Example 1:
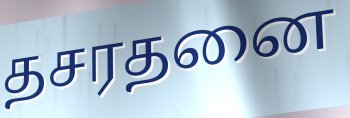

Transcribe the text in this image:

தசரதனை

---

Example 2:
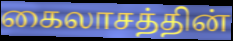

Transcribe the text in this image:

கைலாசத்தின்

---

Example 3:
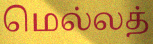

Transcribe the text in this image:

மெல்லத்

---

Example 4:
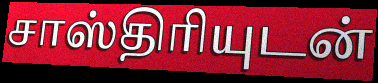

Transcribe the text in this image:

சாஸ்திரியுடன்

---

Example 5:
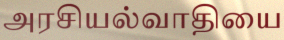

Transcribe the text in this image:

அரசியல்வாதியை